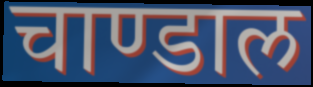
चाण्डाल